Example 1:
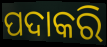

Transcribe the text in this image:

ପଦାକରି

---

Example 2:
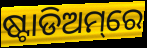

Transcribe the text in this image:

ଷ୍ଟାଡିଅମ୍‌ରେ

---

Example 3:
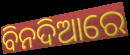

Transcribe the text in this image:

ବିନଦିଆରେ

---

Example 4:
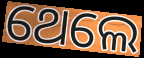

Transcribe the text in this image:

ଥେଲେ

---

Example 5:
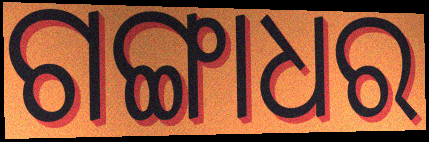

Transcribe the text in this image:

ଗଙ୍ଗାଧର